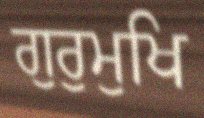
ਗੁਰੁਮੁਖਿ